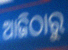
ଆଜିଠାରୁ